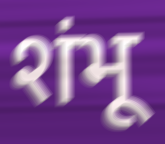
शंभू